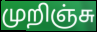
முறிஞ்சு